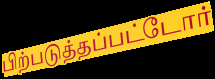
பிற்படுத்தப்பட்டோர்